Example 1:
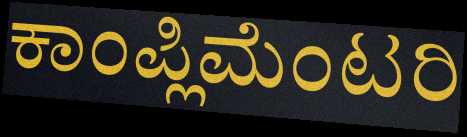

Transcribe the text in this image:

ಕಾಂಪ್ಲಿಮೆಂಟರಿ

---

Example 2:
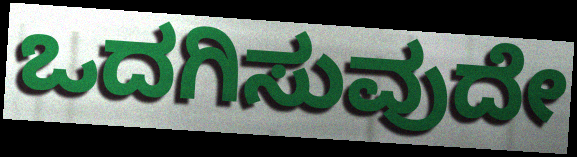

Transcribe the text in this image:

ಒದಗಿಸುವುದೇ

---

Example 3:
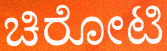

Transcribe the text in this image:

ಚಿರೋಟಿ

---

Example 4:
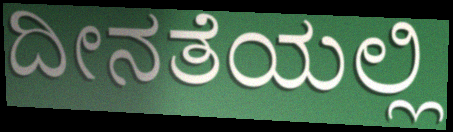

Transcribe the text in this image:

ದೀನತೆಯಲ್ಲಿ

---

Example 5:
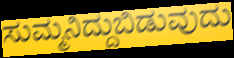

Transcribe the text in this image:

ಸುಮ್ಮನಿದ್ದುಬಿಡುವುದು